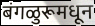
बंगळुरूमधून